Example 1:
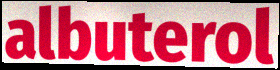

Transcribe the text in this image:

albuterol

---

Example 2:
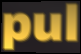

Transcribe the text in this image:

pul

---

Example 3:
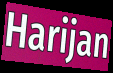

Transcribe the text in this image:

Harijan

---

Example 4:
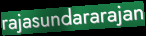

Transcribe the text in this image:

rajasundararajan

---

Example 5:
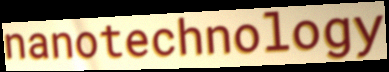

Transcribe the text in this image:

nanotechnology